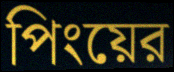
পিংয়ের